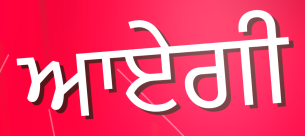
ਆਏਗੀ